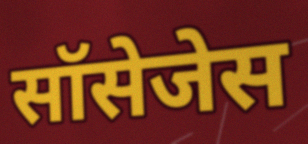
सॉसेजेस